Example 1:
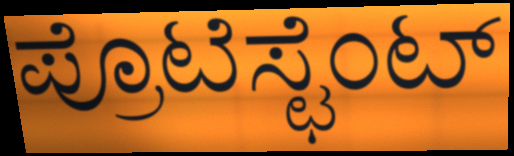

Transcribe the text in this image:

ಪ್ರೊಟೆಸ್ಟೆಂಟ್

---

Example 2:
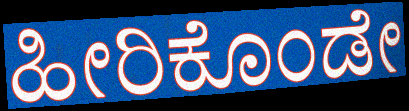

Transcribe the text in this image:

ಹೀರಿಕೊಂಡೇ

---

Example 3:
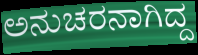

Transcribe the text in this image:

ಅನುಚರನಾಗಿದ್ದ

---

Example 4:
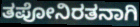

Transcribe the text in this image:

ತಪೋನಿರತನಾಗಿ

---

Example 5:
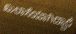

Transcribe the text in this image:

ಖುಲಾಸೆಯಾಗಿದ್ದಾರೆ